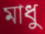
মাধু